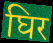
घिर